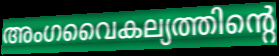
അംഗവൈകല്യത്തിന്റെ